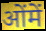
ओंमें